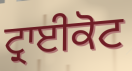
ਟ੍ਰਾਈਕੋਟ